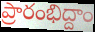
ప్రారంభిద్దాం